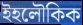
ইহলৌকিক